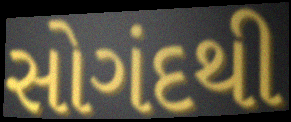
સોગંદથી